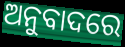
ଅନୁବାଦରେ